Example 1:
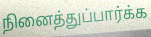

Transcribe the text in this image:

நினைத்துப்பார்க்க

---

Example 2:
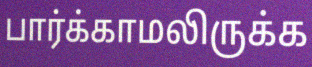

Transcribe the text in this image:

பார்க்காமலிருக்க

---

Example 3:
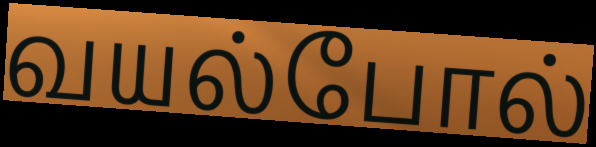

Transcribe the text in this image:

வயல்போல்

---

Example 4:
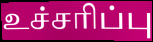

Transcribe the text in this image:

உச்சரிப்பு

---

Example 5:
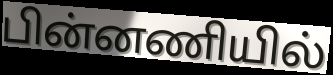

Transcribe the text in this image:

பின்னணியில்